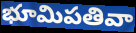
భూమిపతివా